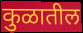
कुळातील